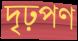
দৃঢ়পণ